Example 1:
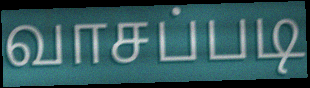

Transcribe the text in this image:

வாசப்படி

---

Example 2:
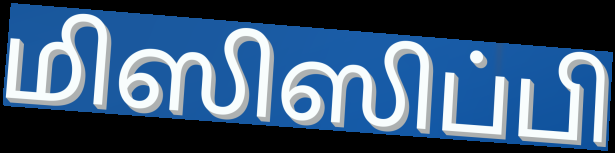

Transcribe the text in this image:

மிஸிஸிப்பி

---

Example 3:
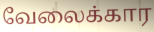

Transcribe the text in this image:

வேலைக்கார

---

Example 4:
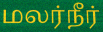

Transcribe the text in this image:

மலர்நீர்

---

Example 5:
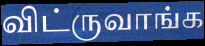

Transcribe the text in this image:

விட்ருவாங்க